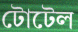
টোটেল